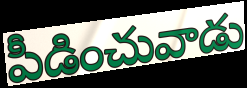
పీడించువాడు